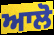
ਆਲੋ